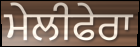
ਮੇਲੀਫੇਰਾ